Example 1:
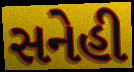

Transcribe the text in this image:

સનેહી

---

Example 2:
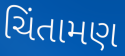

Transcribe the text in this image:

ચિંતામણ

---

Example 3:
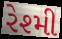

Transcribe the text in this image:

રેશ્મી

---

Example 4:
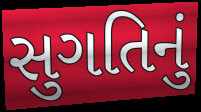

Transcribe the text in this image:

સુગતિનું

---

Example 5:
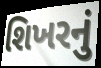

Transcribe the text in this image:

શિખરનું